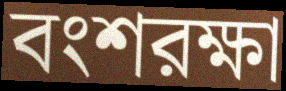
বংশরক্ষা